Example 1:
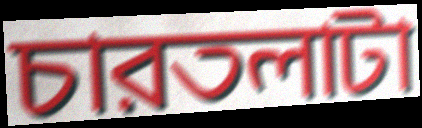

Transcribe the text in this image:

চারতলাটা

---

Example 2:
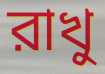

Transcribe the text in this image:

রাখু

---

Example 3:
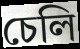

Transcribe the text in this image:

চেলি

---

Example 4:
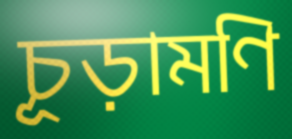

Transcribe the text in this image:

চূড়ামণি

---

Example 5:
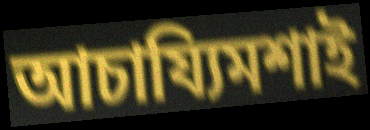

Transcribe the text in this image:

আচায্যিমশাই